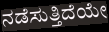
ನಡೆಸುತ್ತಿದೆಯೇ